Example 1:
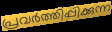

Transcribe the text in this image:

പ്രവർത്തിപ്പിക്കുന്ന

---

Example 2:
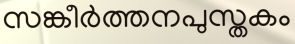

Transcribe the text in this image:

സങ്കീർത്തനപുസ്തകം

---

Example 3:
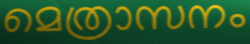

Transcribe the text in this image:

മെത്രാസനം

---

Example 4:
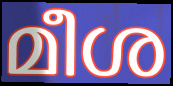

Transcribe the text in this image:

മീശ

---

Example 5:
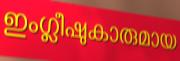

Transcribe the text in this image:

ഇംഗ്ലീഷുകാരുമായ